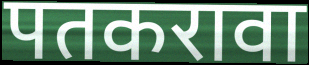
पतकरावा